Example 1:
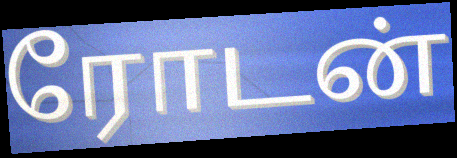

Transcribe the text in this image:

ரோடன்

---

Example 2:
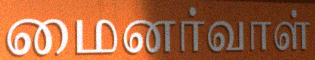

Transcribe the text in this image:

மைனர்வாள்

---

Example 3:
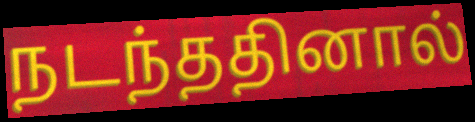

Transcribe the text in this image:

நடந்ததினால்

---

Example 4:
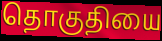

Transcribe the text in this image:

தொகுதியை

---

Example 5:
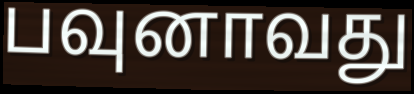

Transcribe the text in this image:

பவுனாவது